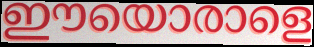
ഈയൊരാളെ